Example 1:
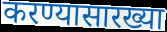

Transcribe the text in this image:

करण्यासारख्या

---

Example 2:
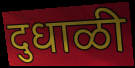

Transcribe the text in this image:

दुधाळी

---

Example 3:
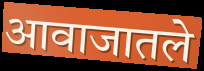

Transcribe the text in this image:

आवाजातले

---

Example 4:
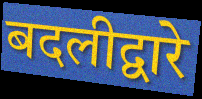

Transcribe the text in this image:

बदलीद्वारे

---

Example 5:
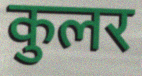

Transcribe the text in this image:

कुलर